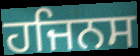
ਹਜਿਨਸ